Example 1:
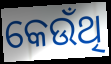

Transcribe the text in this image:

କେଉଁଥି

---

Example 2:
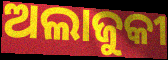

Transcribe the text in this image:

ଅଲାଜୁକୀ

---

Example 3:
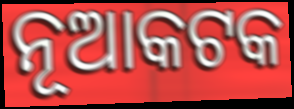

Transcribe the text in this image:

ନୂଆକଟକ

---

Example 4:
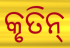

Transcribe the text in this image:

କୃତିନ୍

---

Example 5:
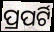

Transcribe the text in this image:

ପ୍ରପର୍ଟି